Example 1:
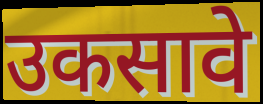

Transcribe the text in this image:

उकसावे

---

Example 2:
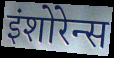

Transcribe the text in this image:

इंशोरेन्स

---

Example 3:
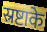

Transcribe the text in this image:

स्रष्टाके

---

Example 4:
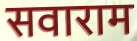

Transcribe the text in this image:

सवाराम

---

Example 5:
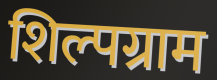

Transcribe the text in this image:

शिल्पग्राम